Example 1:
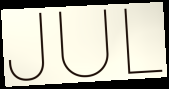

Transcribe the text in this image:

JUL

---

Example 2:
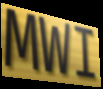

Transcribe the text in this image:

MWI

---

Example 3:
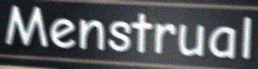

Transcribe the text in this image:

Menstrual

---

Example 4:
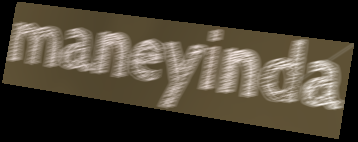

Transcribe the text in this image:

maneyinda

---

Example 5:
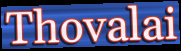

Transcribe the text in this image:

Thovalai